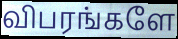
விபரங்களே